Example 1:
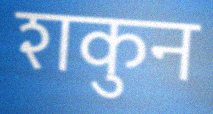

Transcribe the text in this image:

शकुन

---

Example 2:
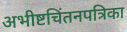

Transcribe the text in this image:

अभीष्टचिंतनपत्रिका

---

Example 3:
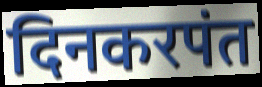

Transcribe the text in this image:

दिनकरपंत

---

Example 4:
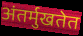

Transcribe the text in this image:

अंतर्मुखतेत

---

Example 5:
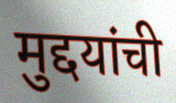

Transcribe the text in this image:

मुद्दयांची